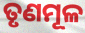
ତୃଣମୂଳ